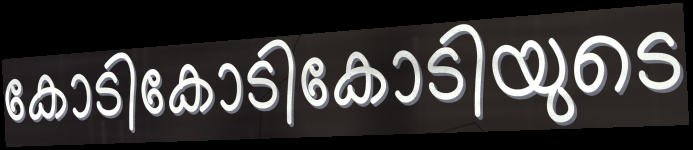
കോടികോടികോടിയുടെ